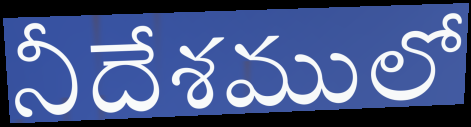
నీదేశములో